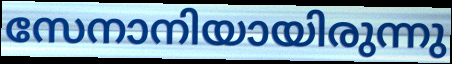
സേനാനിയായിരുന്നു